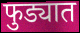
फुड्यात